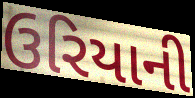
ઉરિયાની